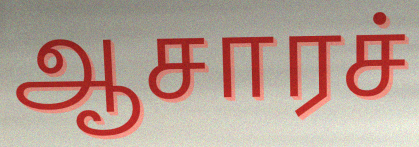
ஆசாரச்